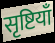
सृष्टियाँ